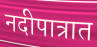
नदीपात्रात